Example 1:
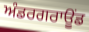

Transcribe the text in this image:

ਅੰਡਰਗਰਾਊੰਡ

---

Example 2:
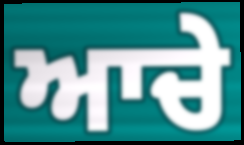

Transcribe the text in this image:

ਆਚੇ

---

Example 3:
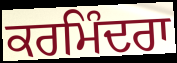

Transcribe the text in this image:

ਕਰਮਿੰਦਰਾ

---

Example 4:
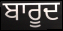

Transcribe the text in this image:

ਬਾਰੂਦ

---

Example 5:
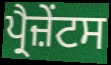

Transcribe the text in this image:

ਪ੍ਰੈਜ਼ੇਂਟਸ